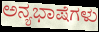
ಅನ್ಯಭಾಷೆಗಳು